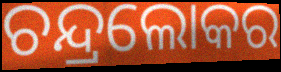
ଚନ୍ଦ୍ରଲୋକର